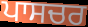
ਪਾਸਚਰ